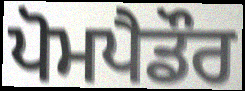
ਪੋਮਪੈਡੌਰ